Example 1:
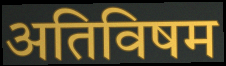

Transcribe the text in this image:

अतिविषम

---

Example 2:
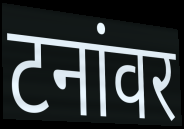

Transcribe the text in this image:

टनांवर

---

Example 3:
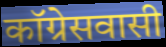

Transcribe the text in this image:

कॉग्रेसवासी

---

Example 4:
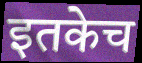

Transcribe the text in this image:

इतकेच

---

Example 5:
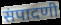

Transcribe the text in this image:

संपादणी